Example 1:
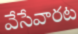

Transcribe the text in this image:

వేసేవారట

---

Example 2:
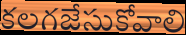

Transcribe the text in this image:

కలగజేసుకోవాలి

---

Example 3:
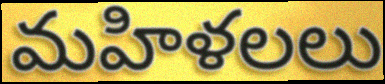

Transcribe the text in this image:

మహిళలలు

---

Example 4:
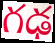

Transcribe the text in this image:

గఢ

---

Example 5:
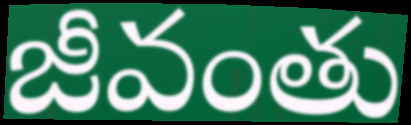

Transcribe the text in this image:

జీవంతు